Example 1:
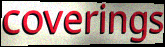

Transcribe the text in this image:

coverings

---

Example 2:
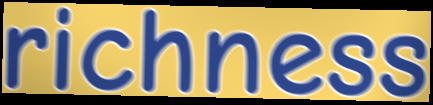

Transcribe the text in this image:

richness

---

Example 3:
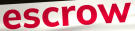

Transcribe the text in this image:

escrow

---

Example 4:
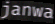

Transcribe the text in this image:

janwa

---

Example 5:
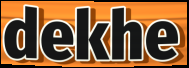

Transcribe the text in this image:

dekhe